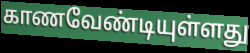
காணவேண்டியுள்ளது